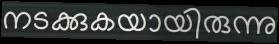
നടക്കുകയായിരുന്നു